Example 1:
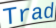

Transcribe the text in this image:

Trad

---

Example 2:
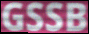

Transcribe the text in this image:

GSSB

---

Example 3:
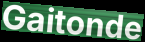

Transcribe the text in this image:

Gaitonde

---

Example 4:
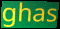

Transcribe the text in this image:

ghas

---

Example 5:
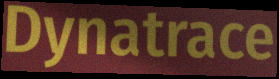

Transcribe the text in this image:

Dynatrace